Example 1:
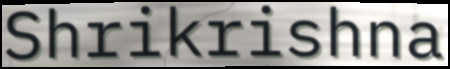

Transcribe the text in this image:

Shrikrishna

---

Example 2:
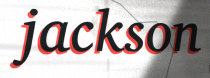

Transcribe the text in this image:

jackson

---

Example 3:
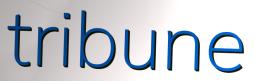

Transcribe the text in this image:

tribune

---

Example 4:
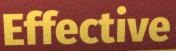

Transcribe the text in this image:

Effective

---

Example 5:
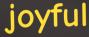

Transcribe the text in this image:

joyful